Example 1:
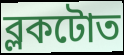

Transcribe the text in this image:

ব্লকটোত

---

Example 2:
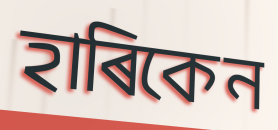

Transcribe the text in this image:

হাৰিকেন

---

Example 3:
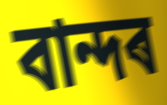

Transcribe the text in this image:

বান্দৰ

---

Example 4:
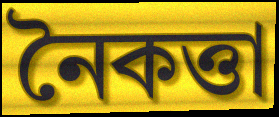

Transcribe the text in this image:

নৈকত্তা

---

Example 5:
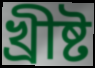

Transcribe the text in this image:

খ্ৰীষ্ট